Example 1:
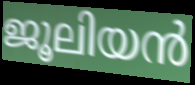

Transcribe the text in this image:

ജൂലിയൻ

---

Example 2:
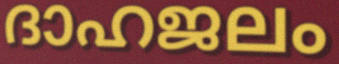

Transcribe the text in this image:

ദാഹജലം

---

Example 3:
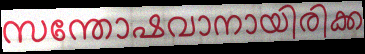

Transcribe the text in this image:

സന്തോഷവാനായിരിക്ക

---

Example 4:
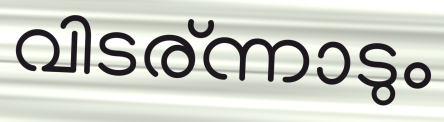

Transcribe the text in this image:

വിടര്ന്നാടും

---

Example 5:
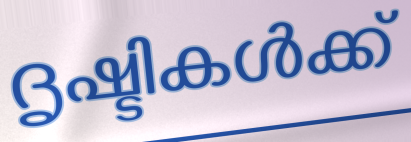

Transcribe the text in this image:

ദൃഷ്ടികൾക്ക്